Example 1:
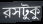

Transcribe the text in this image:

রসটুকু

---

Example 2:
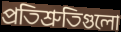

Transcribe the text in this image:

প্রতিশ্রুতিগুলো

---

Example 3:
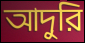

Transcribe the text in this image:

আদুরি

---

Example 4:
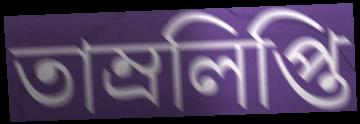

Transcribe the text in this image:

তাম্রলিপ্তি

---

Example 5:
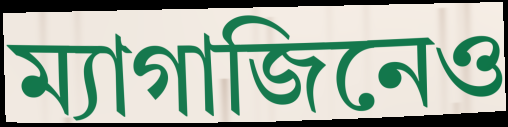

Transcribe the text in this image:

ম্যাগাজিনেও